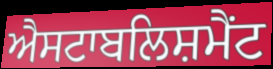
ਐਸਟਾਬਲਿਸ਼ਮੈਂਟ